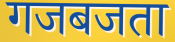
गजबजता